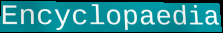
Encyclopaedia